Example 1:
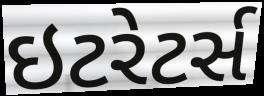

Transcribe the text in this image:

ઇટરેટર્સ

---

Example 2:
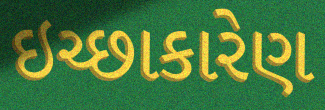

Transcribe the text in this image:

ઇચ્છાકારેણ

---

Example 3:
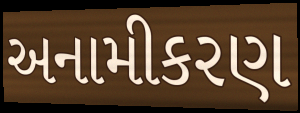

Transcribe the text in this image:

અનામીકરણ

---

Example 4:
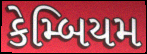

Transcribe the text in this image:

કેમ્બિયમ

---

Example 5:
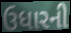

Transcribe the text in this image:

ઉધારની